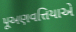
પૂઅણવત્તિયાએ